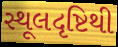
સ્થૂલદૃષ્ટિથી